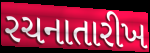
રચનાતારીખ